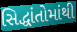
સિદ્ધાંતોમાંથી